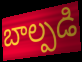
బాల్పడి